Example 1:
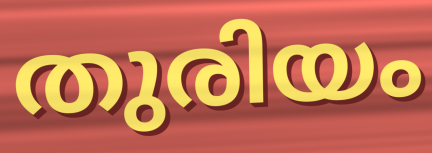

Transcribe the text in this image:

തുരിയം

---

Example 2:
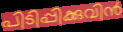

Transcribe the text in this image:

പിടിപ്പിക്കുവിൻ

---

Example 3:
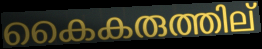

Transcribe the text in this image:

കൈകരുത്തില്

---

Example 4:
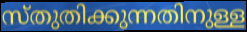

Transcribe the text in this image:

സ്തുതിക്കുന്നതിനുള്ള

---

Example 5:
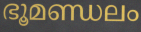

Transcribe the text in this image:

ഭൂമണ്ഡലം